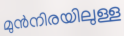
മുൻനിരയിലുള്ള